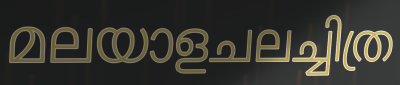
മലയാളചലച്ചിത്ര